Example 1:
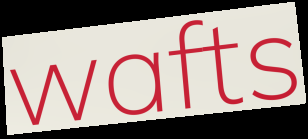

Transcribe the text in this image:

wafts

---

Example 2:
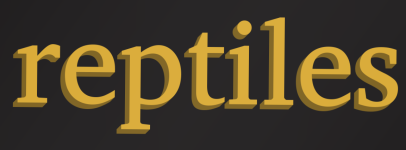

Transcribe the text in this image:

reptiles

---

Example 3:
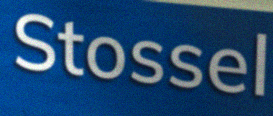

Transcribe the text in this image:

Stossel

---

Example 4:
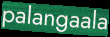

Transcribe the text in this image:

palangaala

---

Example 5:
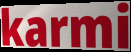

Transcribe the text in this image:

karmi